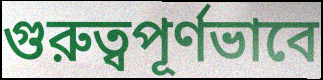
গুরুত্বপূর্ণভাবে